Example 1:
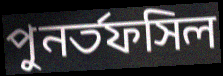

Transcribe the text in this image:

পুনর্তফসিল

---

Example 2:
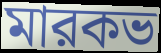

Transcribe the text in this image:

মারকভ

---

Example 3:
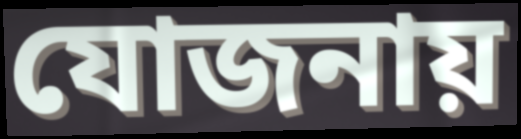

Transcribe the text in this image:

যোজনায়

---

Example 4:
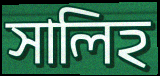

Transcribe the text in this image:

সালিহ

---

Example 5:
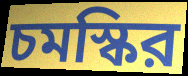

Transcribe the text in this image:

চমস্কির